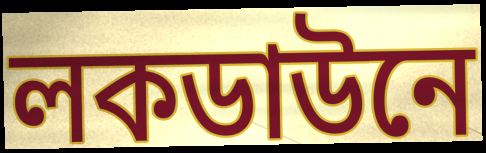
লকডাউনে